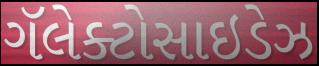
ગૅલેક્ટોસાઇડેઝ